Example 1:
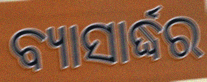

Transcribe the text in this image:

ବ୍ୟାସାର୍ଦ୍ଧର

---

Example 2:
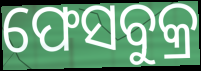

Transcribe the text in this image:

ଫେସବୁକ୍ର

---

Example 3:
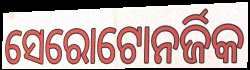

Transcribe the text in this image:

ସେରୋଟୋନର୍ଜିକ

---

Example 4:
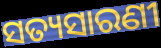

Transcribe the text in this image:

ସତ୍ୟସାରଣୀ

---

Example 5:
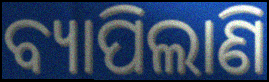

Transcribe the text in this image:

ବ୍ୟାପିଲାଣି